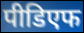
पीडिएफ